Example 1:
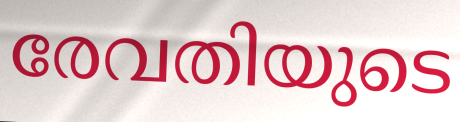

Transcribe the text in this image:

രേവതിയുടെ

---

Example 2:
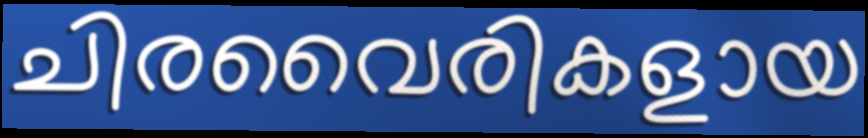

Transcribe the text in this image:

ചിരവൈരികളായ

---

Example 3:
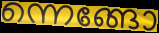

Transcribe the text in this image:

ന്നെങ്ങോ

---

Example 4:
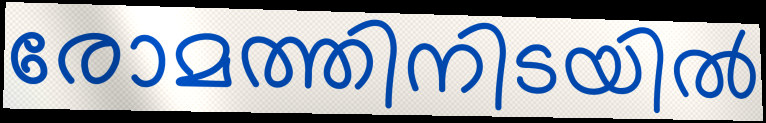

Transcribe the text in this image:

രോമത്തിനിടയിൽ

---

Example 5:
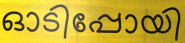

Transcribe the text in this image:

ഓടിപ്പോയി